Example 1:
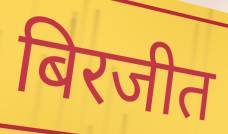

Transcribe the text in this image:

बिरजीत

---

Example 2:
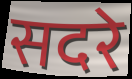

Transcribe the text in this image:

सदरे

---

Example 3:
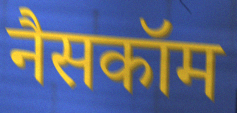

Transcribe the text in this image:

नैसकॉम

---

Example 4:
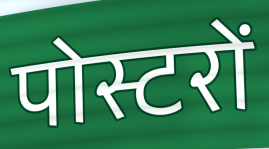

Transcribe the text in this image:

पोस्टरों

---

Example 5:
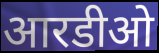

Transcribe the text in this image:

आरडीओ